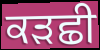
ਕੜਛੀ